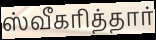
ஸ்வீகரித்தார்